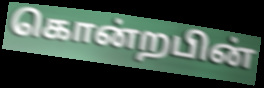
கொன்றபின்